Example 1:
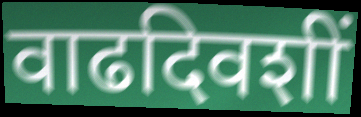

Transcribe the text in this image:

वाढदिवशीं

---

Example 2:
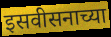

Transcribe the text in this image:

इसवीसनाच्या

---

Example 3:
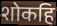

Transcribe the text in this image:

शोकहि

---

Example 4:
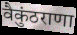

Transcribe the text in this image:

वैकुंठराणा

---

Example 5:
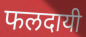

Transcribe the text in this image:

फलदायी